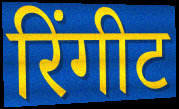
रिंगीट